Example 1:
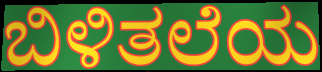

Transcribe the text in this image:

ಬಿಳಿತಲೆಯ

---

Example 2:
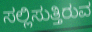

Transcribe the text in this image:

ಸಲ್ಲಿಸುತ್ತಿರುವ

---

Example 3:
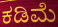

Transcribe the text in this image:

ಕಡಿಮೆ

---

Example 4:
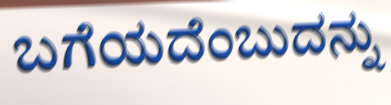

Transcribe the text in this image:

ಬಗೆಯದೆಂಬುದನ್ನು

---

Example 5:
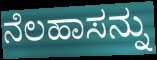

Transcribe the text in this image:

ನೆಲಹಾಸನ್ನು